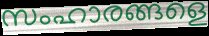
സംഹാരങ്ങളെ